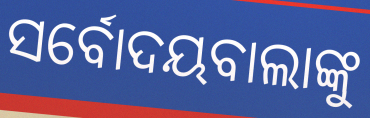
ସର୍ବୋଦୟବାଲାଙ୍କୁ